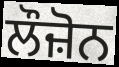
ਲੌਜ਼ੋਨ